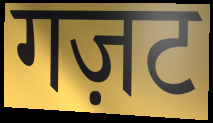
गज़ट